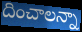
దించాలన్నా